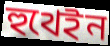
হুথেইন